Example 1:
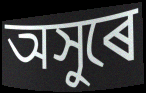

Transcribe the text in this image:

অসুৰে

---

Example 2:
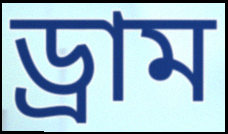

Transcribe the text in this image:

ড্ৰাম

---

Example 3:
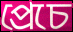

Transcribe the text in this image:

প্ৰেচে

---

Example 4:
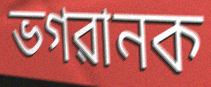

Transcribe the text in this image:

ভগৱানক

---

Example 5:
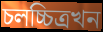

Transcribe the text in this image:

চলচ্চিত্ৰখন